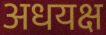
अधयक्ष